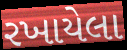
રખાયેલા